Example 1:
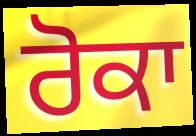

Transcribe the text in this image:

ਰੋਕਾ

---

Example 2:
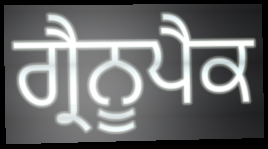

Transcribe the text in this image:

ਗ੍ਰੈਨੂਪੈਕ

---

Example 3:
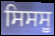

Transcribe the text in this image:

ਸਿਸਸੂ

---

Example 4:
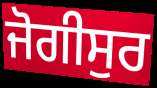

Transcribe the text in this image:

ਜੋਗੀਸੁਰ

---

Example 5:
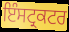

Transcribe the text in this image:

ਇੰਸਟ੍ਰਕਟਰ